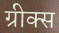
ग्रीक्स